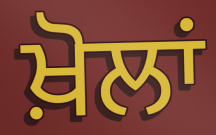
ਖ਼ੋਲਾਂ